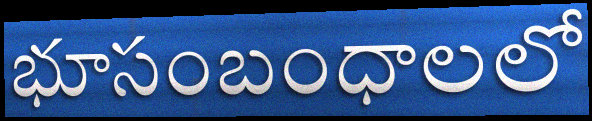
భూసంబంధాలలో